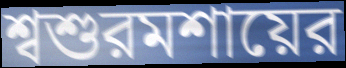
শ্বশুরমশায়ের